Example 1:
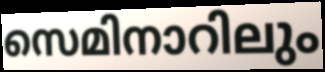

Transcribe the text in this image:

സെമിനാറിലും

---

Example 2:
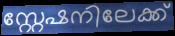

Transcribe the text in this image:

സ്റ്റേഷനിലേക്ക്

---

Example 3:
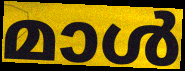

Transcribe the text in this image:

മാൾ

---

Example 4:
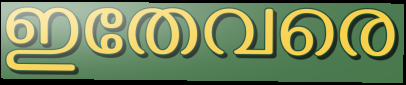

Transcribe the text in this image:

ഇതേവരെ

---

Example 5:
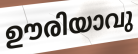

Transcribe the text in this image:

ഊരിയാവു